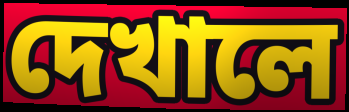
দেখালে